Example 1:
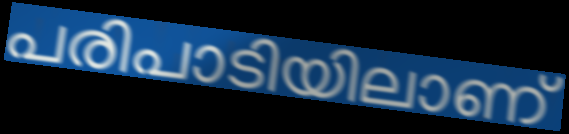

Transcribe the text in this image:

പരിപാടിയിലാണ്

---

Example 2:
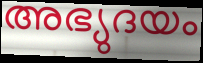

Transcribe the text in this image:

അഭ്യുദയം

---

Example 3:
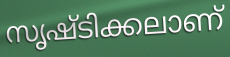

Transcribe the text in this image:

സൃഷ്ടിക്കലാണ്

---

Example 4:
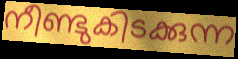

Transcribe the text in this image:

നീണ്ടുകിടക്കുന്ന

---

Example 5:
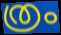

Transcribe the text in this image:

ത്രം